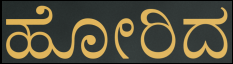
ಹೋರಿದ